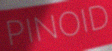
PINOID